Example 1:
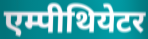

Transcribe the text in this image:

एम्पीथियेटर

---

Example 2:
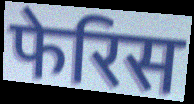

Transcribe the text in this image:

फेरिस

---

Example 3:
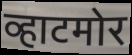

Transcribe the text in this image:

व्हाटमोर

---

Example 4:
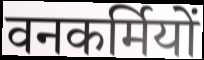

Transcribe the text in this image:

वनकर्मियों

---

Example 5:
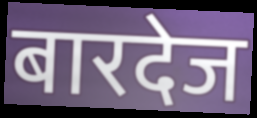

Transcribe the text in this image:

बारदेज